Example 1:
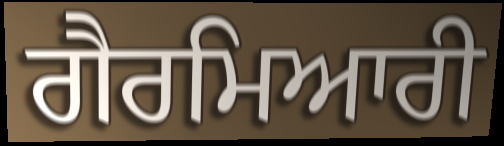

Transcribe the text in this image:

ਗੈਰਮਿਆਰੀ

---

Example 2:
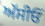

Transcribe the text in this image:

ਅੱਸੀਓਂ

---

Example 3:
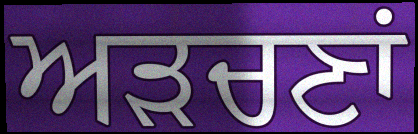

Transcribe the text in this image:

ਅੜਚਣਾਂ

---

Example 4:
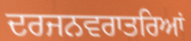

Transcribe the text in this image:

ਦਰਜਨਵਰਾਤਰਿਆਂ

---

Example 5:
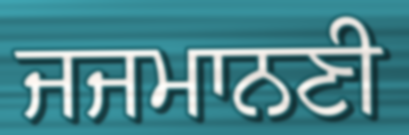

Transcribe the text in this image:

ਜਜਮਾਨਣੀ